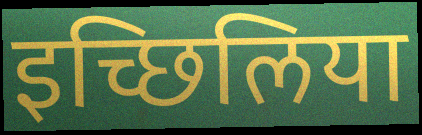
इच्छिलिया